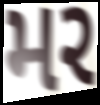
મર